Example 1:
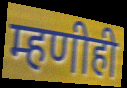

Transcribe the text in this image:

म्हणीही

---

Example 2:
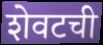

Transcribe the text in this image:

शेवटची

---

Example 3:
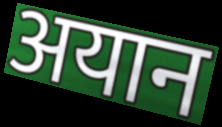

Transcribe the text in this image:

अयान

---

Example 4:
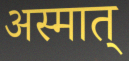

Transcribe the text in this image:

अस्मात्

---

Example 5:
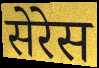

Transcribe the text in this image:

सेरेस